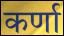
कर्णा